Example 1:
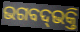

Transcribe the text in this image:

ଭଗବଦ୍‌ଭକ୍ତି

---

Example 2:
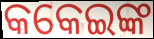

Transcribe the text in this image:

କକେଇଙ୍କ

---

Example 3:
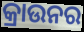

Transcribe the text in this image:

କ୍ରାଉନର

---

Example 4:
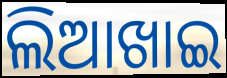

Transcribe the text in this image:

ଲିଆଖାଇ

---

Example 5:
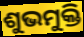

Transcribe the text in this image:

ଶୁଭମୁକ୍ତି